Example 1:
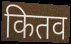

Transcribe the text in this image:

कितव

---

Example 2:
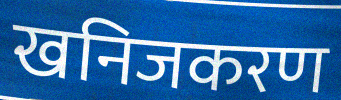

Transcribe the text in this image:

खनिजकरण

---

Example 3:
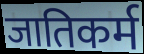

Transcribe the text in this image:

जातिकर्म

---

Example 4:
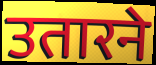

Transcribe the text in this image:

उतारने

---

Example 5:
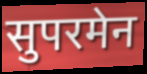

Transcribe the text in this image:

सुपरमेन